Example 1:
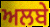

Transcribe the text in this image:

ਅਲਬੇ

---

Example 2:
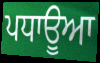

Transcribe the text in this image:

ਪਧਾਊਆ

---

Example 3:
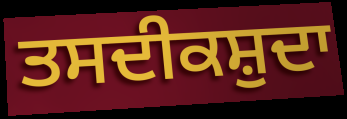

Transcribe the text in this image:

ਤਸਦੀਕਸ਼ੁਦਾ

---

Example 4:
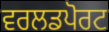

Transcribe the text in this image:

ਵਰਲਡਪੋਰਟ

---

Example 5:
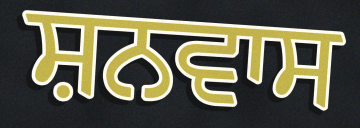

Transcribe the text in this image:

ਸ਼ਨਵਾਸ